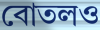
বোতলও